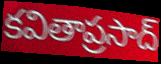
కవితాప్రసాద్